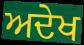
ਅਦੇਖ